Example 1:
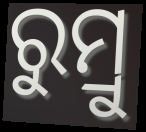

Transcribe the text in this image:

ରୁମ୍ରୁ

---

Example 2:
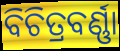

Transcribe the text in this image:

ବିଚିତ୍ରବର୍ଣ୍ଣା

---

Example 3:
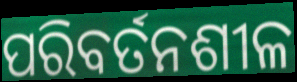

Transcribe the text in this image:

ପରିବର୍ତନଶୀଳ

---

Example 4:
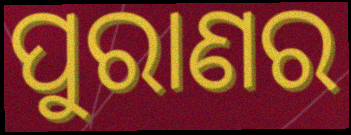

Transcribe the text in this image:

ପୁରାଣର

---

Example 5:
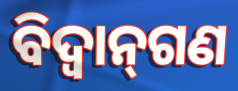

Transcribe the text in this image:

ବିଦ୍ୱାନ୍‌ଗଣ